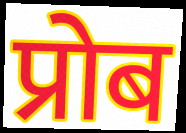
प्रोब